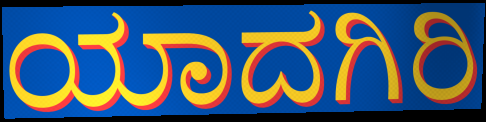
ಯಾದಗಿರಿ